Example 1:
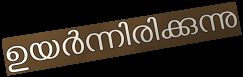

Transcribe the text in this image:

ഉയർന്നിരിക്കുന്നു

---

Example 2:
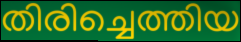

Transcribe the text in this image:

തിരിച്ചെത്തിയ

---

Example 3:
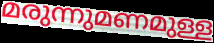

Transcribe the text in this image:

മരുന്നുമണമുള്ള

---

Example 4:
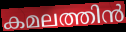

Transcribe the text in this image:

കമലത്തിൻ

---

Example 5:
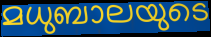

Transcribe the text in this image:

മധുബാലയുടെ